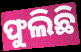
ଫୁଲିଛି